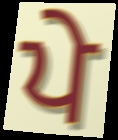
ਪੇ